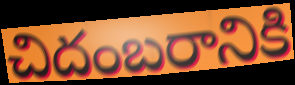
చిదంబరానికి